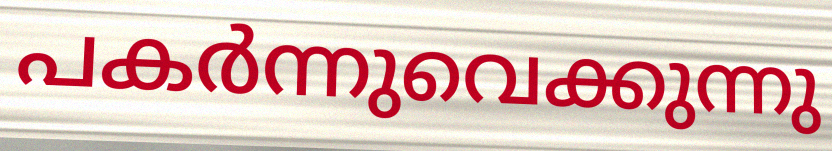
പകർന്നുവെക്കുന്നു